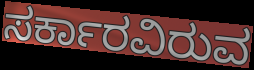
ಸರ್ಕಾರವಿರುವ